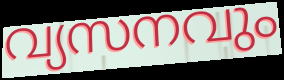
വ്യസനവും